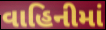
વાહિનીમાં